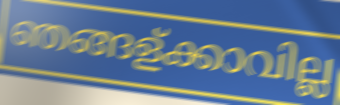
ഞങ്ങള്ക്കാവില്ല